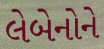
લેબેનોને